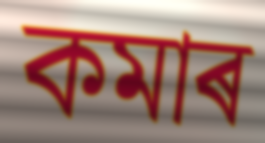
কমাৰ